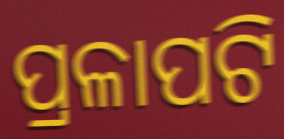
ପ୍ରଳାପଟି